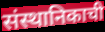
संस्थानिकाची